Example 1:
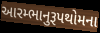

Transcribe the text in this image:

આરમ્ભાનુરૂપથોમના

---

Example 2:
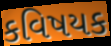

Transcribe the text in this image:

કવિષયક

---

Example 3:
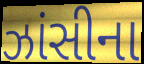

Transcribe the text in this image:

ઝાંસીના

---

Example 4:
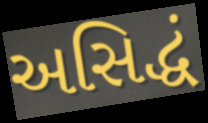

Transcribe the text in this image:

અસિદ્ધં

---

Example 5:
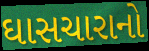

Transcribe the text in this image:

ઘાસચારાનો